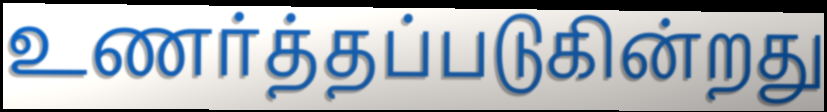
உணர்த்தப்படுகின்றது